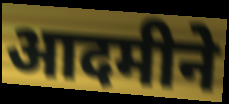
आदमीने